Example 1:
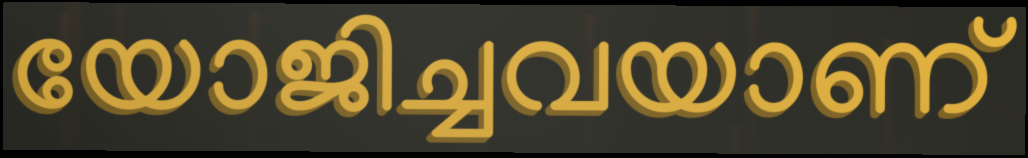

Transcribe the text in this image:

യോജിച്ചവയാണ്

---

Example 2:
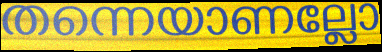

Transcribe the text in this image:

തന്നെയാണല്ലോ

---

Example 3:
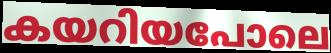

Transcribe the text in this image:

കയറിയപോലെ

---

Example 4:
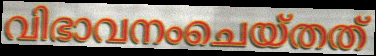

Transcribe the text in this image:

വിഭാവനംചെയ്തത്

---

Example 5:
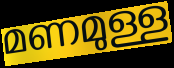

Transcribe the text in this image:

മണമുള്ള